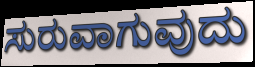
ಸುರುವಾಗುವುದು